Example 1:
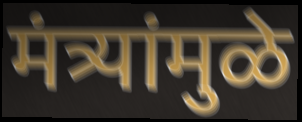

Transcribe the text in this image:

मंत्र्यांमुळे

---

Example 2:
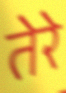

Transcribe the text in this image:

तेरे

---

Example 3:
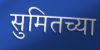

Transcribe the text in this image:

सुमितच्या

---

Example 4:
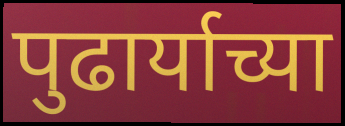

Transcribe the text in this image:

पुढार्याच्या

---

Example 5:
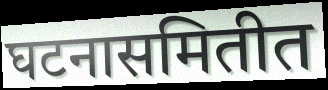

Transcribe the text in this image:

घटनासमितीत